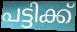
പട്ടിക്ക്